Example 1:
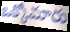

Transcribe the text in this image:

ఒక్కోమారు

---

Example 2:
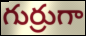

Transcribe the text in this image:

గుర్రుగా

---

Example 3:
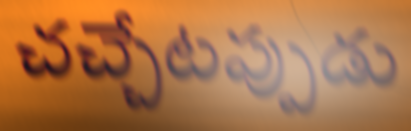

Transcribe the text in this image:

చచ్చేటప్పుడు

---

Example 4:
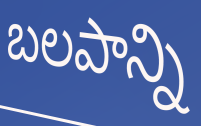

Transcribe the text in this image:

బలపాన్ని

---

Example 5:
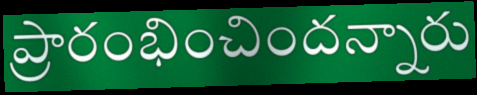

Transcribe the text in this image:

ప్రారంభించిందన్నారు